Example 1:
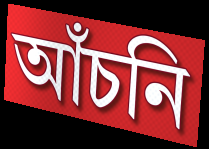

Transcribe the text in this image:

আঁচনি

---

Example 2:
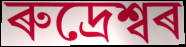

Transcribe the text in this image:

ৰুদ্ৰেশ্বৰ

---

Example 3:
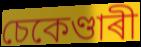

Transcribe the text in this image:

চেকেণ্ডাৰী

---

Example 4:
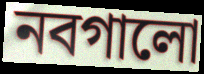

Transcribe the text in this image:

নবগালো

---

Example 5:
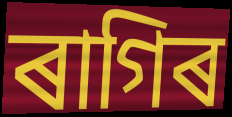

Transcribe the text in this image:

ৰাগিৰ